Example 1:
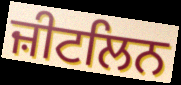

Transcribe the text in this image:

ਜ਼ੀਟਲਿਨ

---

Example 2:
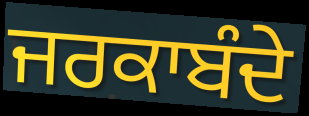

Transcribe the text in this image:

ਜਰਕਾਬੰਦੇ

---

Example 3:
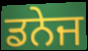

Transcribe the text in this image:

ਡਨੇਜ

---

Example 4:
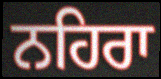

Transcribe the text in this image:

ਨਹਿਰਾ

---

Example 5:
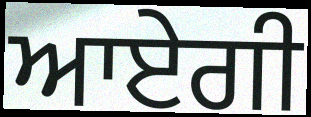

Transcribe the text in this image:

ਆਏਗੀ